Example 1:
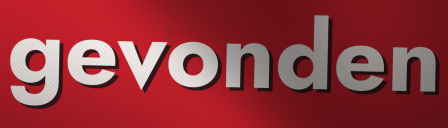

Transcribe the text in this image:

gevonden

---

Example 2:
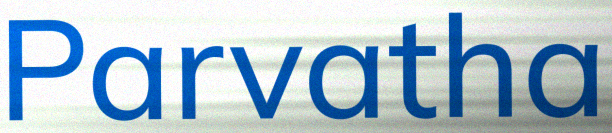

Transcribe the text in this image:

Parvatha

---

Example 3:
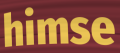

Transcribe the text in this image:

himse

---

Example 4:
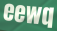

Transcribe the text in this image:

eewq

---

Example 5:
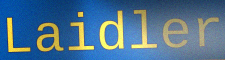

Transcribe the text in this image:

Laidler